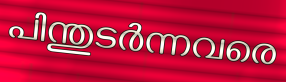
പിന്തുടർന്നവരെ